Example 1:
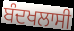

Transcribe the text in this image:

ਬੰਦਖਲਾਸੀ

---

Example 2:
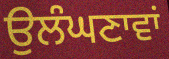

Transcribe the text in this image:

ਉਲੰਘਣਾਵਾਂ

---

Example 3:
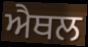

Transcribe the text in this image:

ਐਥਲ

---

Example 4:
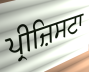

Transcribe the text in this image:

ਪ੍ਰੀਜ਼ਿਸਟਾ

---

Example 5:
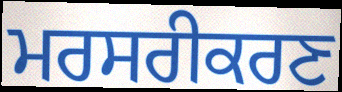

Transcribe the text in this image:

ਮਰਸਰੀਕਰਣ